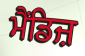
ਮੈਂਡਿਜ਼